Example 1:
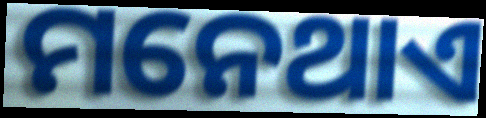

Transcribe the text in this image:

ମନେଥାଏ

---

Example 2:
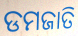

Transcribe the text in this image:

ଡମଜାତି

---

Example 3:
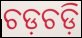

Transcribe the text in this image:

ଚଡ଼ଚଡ଼ି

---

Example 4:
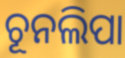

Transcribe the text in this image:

ଚୂନଲିପା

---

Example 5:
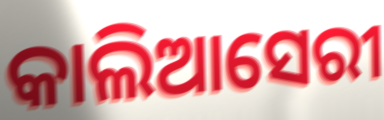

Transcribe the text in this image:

କାଲିଆସେରୀ